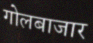
गोलबाजार